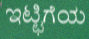
ಇಟ್ಟಿಗೆಯ